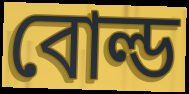
বোল্ড